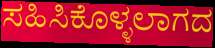
ಸಹಿಸಿಕೊಳ್ಳಲಾಗದ